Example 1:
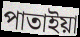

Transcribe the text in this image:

পাতাইয়া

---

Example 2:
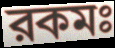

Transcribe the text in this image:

রকমঃ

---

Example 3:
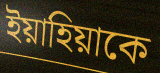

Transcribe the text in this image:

ইয়াহিয়াকে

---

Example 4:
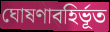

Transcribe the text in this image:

ঘোষণাবহির্ভূত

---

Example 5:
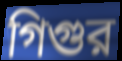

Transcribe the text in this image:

গিগুর